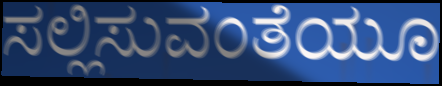
ಸಲ್ಲಿಸುವಂತೆಯೂ